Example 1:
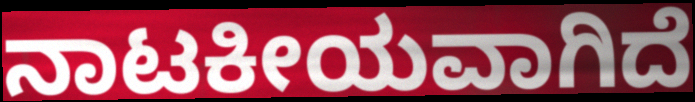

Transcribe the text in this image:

ನಾಟಕೀಯವಾಗಿದೆ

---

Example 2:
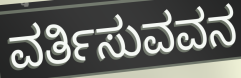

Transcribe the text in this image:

ವರ್ತಿಸುವವನ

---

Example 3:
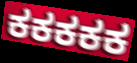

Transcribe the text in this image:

ಕಕಕಕಕ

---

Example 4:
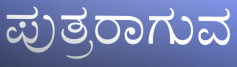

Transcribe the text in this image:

ಪುತ್ರರಾಗುವ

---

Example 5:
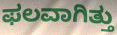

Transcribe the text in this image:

ಫಲವಾಗಿತ್ತು